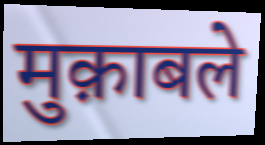
मुक़ाबले